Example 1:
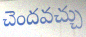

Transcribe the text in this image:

చెందవచ్చు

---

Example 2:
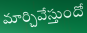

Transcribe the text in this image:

మార్చివేస్తుందో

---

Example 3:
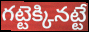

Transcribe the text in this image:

గట్టెక్కినట్టే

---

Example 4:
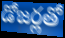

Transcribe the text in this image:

డోజర్లతో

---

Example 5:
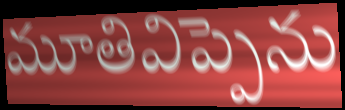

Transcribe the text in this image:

మూతివిప్పెను